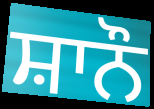
ਸ਼ਾਨੌ